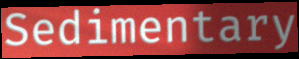
Sedimentary